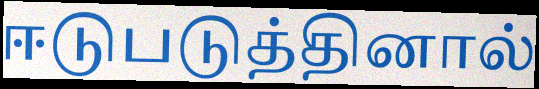
ஈடுபடுத்தினால்